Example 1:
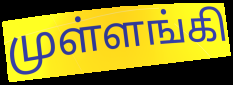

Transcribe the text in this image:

முள்ளங்கி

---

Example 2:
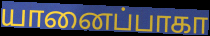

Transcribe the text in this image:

யானைப்பாகா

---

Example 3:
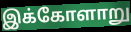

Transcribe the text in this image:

இக்கோளாறு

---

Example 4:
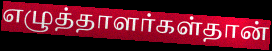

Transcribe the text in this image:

எழுத்தாளர்கள்தான்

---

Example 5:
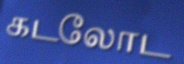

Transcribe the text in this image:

கடலோட